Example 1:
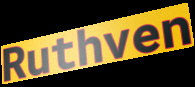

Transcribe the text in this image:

Ruthven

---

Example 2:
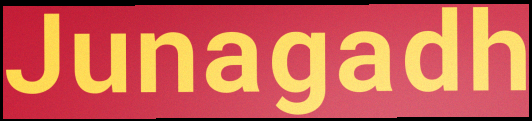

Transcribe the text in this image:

Junagadh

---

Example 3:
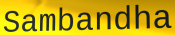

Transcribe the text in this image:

Sambandha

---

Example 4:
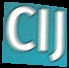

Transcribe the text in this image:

CIJ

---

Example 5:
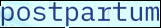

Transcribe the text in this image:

postpartum